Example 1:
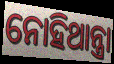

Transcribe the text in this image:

ନୋହିଥାନ୍ତ୍ରା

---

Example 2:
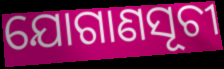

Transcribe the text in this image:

ଯୋଗାଣସୂଚୀ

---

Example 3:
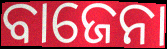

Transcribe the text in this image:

ବାଜେନା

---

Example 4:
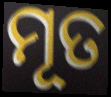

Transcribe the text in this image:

ମୂତ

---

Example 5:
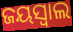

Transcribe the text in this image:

ଜୟସ୍ୱାଲ